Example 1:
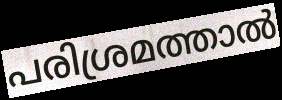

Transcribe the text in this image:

പരിശ്രമത്താൽ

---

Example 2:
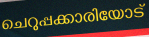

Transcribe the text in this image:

ചെറുപ്പക്കാരിയോട്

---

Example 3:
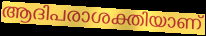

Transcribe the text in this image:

ആദിപരാശക്തിയാണ്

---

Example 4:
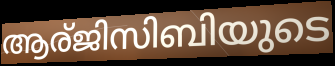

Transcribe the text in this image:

ആര്ജിസിബിയുടെ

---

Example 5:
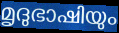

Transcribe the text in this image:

മൃദുഭാഷിയും